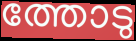
ത്തോടു